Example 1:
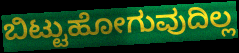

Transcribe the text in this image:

ಬಿಟ್ಟುಹೋಗುವುದಿಲ್ಲ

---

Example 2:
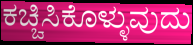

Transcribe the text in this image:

ಕಚ್ಚಿಸಿಕೊಳ್ಳುವುದು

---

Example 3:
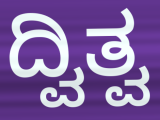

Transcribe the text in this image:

ದ್ವಿತ್ವ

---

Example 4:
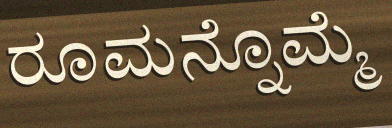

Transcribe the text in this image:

ರೂಮನ್ನೊಮ್ಮೆ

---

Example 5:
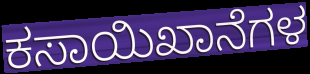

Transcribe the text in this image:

ಕಸಾಯಿಖಾನೆಗಳ